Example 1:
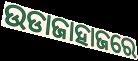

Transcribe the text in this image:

ଉଡାଜାହାଜରେ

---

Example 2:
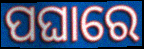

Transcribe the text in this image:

ପଘାରେ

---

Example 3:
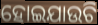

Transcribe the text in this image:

ହୋଇଯାଉଚି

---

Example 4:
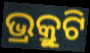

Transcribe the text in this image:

ଭ୍ର୍ରୁକୁଟି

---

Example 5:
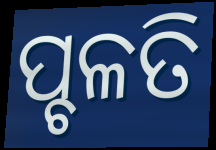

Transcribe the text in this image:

ପ୍ଚଳତି